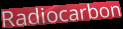
Radiocarbon